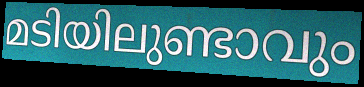
മടിയിലുണ്ടാവും